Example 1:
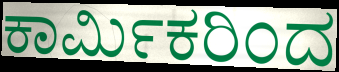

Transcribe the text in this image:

ಕಾರ್ಮಿಕರಿಂದ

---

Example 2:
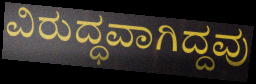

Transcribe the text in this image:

ವಿರುದ್ಧವಾಗಿದ್ದವು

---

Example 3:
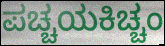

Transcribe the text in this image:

ಪಚ್ಚಯಕಿಚ್ಚಂ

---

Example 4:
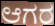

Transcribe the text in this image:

ಆಗರ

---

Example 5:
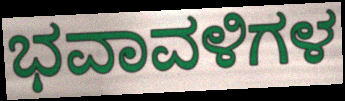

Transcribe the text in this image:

ಭವಾವಳಿಗಳ